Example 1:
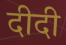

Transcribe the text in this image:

दीदी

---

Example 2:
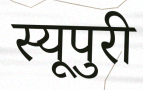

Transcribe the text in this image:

स्यूपुरी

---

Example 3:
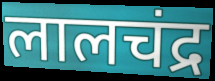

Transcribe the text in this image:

लालचंद्र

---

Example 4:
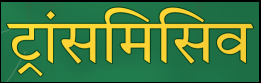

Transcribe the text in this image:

ट्रांसमिसिव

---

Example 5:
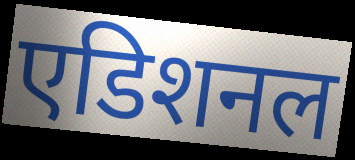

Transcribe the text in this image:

एडिशनल